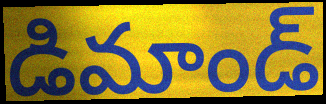
డిమాండ్